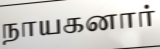
நாயகனார்